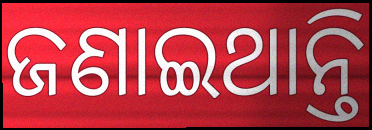
ଜଣାଇଥାନ୍ତି